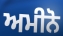
ਅਮੀਨੋ